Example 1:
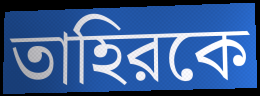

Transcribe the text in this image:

তাহিরকে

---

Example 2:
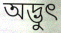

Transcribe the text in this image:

অদ্ভুৎ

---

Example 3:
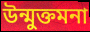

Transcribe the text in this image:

উন্মুক্তমনা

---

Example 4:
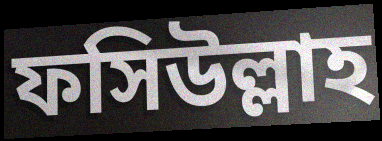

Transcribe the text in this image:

ফসিউল্লাহ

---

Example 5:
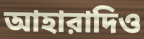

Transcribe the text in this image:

আহারাদিও